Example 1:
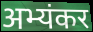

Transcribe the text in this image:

अभ्यंकर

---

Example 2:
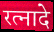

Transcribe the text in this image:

रत्नादे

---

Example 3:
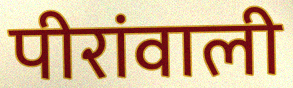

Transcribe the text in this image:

पीरांवाली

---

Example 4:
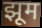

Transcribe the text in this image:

झूम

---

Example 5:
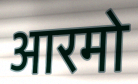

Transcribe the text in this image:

आरमो